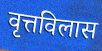
वृत्तविलास